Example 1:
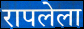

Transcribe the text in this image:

रापलेला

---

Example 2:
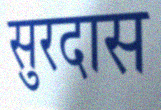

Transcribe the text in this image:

सुरदास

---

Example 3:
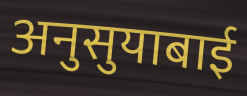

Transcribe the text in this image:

अनुसुयाबाई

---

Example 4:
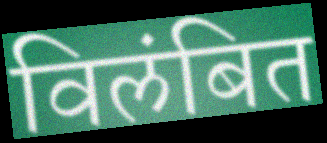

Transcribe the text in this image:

विलंबित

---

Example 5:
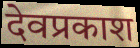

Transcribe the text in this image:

देवप्रकाश